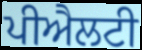
ਪੀਐਲਟੀ